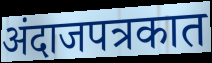
अंदाजपत्रकात